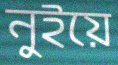
নুইয়ে